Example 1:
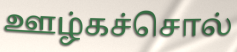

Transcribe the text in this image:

ஊழ்கச்சொல்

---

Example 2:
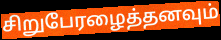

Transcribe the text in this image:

சிறுபேரழைத்தனவும்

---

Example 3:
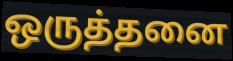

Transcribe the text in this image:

ஒருத்தனை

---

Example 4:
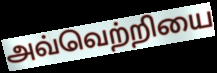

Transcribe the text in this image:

அவ்வெற்றியை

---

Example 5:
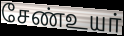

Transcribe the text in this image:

சேண்உயர்